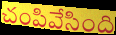
చంపివేసింది